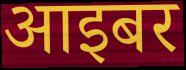
आइबर